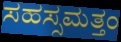
ಸಹಸ್ಸಮತ್ತಂ